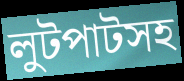
লুটপাটসহ